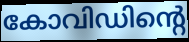
കോവിഡിന്റെ